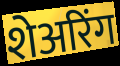
शेअरिंग